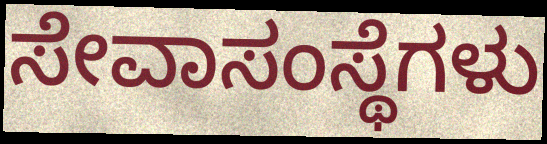
ಸೇವಾಸಂಸ್ಥೆಗಳು